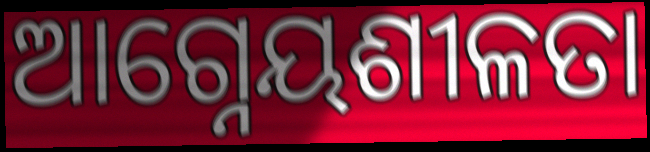
ଆଗ୍ନେୟଶୀଳତା